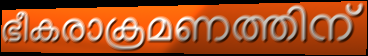
ഭീകരാക്രമണത്തിന്